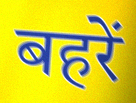
बहरें